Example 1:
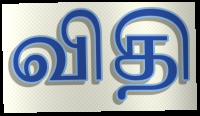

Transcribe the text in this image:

விதி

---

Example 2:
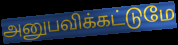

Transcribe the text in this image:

அனுபவிக்கட்டுமே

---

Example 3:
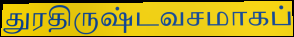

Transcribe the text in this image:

துரதிருஷ்டவசமாகப்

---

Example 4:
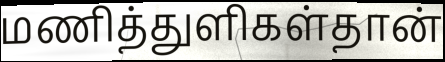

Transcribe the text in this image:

மணித்துளிகள்தான்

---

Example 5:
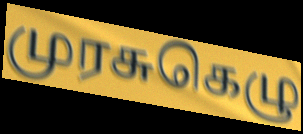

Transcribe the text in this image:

முரசுகெழு